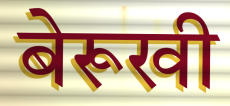
बेरूखी